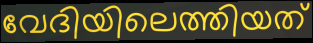
വേദിയിലെത്തിയത്